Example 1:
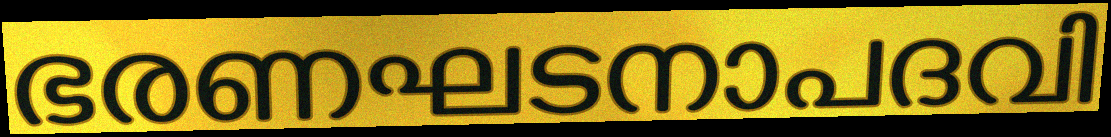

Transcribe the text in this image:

ഭരണഘടനാപദവി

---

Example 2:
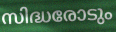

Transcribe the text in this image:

സിദ്ധരോടും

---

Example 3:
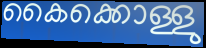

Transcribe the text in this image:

കൈക്കൊള്ളു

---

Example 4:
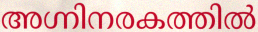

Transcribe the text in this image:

അഗ്നിനരകത്തിൽ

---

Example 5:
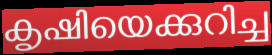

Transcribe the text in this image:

കൃഷിയെക്കുറിച്ച